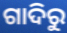
ଗାଦିରୁ